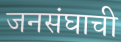
जनसंघाची